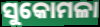
ସୁକୋମଳା